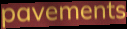
pavements